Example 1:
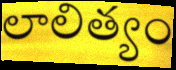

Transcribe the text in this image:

లాలిత్యం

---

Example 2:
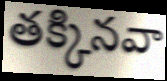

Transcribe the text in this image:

తక్కినవా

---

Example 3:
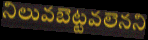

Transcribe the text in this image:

నిలువబెట్టవలెనని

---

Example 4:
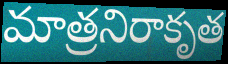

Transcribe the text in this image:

మాత్రనిరాకృత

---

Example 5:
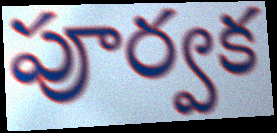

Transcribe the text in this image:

పూర్వక